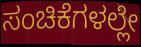
ಸಂಚಿಕೆಗಳಲ್ಲೇ